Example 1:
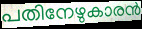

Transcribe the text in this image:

പതിനേഴുകാരൻ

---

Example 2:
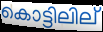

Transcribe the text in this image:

കൊട്ടിലില്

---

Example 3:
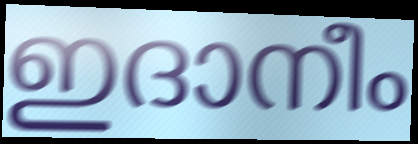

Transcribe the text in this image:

ഇദാനീം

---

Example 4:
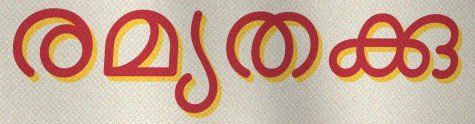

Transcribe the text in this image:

രമ്യതക്കു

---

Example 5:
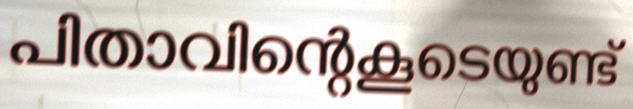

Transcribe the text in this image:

പിതാവിന്റെകൂടെയുണ്ട്